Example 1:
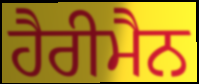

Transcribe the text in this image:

ਹੈਰੀਮੈਨ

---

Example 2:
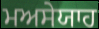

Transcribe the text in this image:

ਮਅਸੇਯਾਹ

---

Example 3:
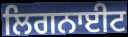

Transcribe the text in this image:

ਲਿਗਨਾਈਟ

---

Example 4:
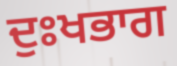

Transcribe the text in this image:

ਦੁਃਖਭਾਗ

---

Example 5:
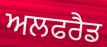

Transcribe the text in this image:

ਅਲਫਰੈਡ